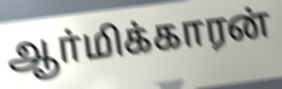
ஆர்மிக்காரன்